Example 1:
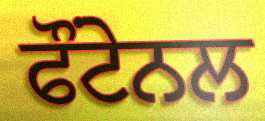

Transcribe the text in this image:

ਫੌਂਟੇਨਲ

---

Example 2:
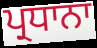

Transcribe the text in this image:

ਪ੍ਰਧਾਨਾ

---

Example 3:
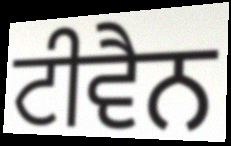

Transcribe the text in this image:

ਟੀਵੈਨ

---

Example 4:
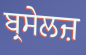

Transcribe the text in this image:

ਬ੍ਰਸੇਲਜ਼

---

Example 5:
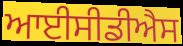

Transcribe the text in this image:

ਆਈਸੀਡੀਐਸ